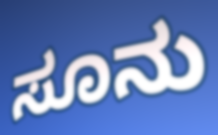
ಸೂನು